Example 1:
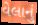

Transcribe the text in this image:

વેલાનું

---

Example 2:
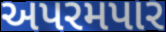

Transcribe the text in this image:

અપરમપાર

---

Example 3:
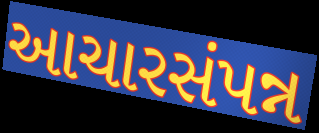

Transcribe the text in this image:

આચારસંપન્ન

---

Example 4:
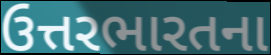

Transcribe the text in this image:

ઉત્તરભારતના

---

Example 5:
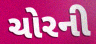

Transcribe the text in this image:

ચોરની